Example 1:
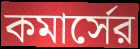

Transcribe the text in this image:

কমার্সের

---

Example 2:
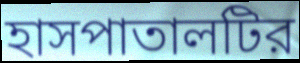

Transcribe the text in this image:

হাসপাতালটির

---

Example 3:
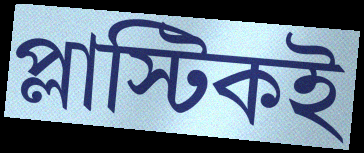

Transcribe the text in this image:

প্লাস্টিকই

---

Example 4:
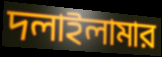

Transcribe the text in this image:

দলাইলামার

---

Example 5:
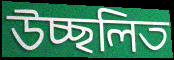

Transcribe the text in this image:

উচ্ছলিত